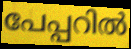
പേപ്പറിൽ